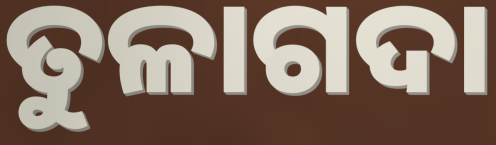
ତୁଳାଗଦା